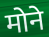
मोने